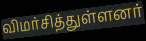
விமர்சித்துள்ளனர்